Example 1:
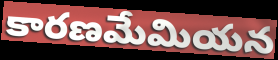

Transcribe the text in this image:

కారణమేమియన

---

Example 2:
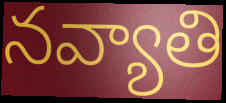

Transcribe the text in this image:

నవ్యాతి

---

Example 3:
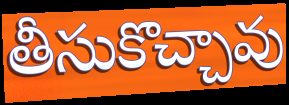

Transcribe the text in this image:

తీసుకొచ్చావు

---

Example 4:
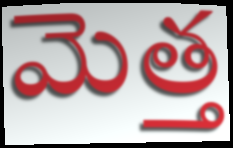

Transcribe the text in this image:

మెత్త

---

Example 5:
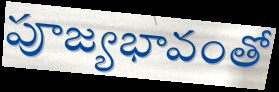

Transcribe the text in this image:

పూజ్యభావంతో